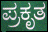
ಪ್ರಕೃತ